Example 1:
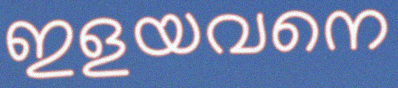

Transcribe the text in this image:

ഇളയവനെ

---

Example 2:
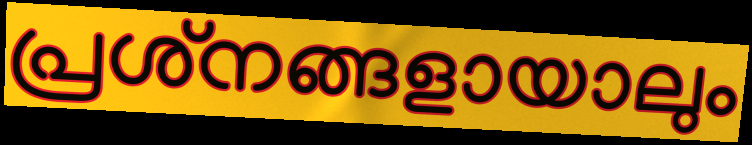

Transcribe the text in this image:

പ്രശ്‌നങ്ങളായാലും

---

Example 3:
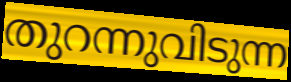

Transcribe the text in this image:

തുറന്നുവിടുന്ന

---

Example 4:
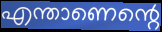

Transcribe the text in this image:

എന്താണെന്റെ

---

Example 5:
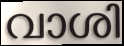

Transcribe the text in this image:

വാശി